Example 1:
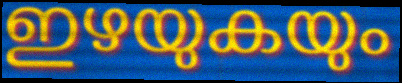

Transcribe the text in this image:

ഇഴയുകയും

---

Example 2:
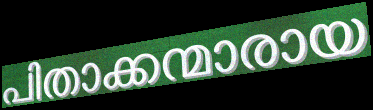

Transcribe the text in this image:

പിതാക്കന്മാരായ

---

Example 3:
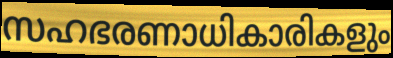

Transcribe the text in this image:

സഹഭരണാധികാരികളും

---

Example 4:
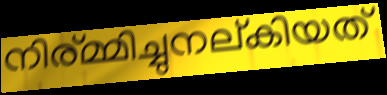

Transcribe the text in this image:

നിര്മ്മിച്ചുനല്കിയത്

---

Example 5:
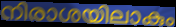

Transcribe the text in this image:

നിരാശയിലാകും